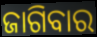
ଜାଗିବାର